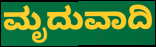
ಮೃದುವಾದಿ